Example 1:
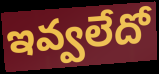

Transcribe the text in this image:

ఇవ్వలేదో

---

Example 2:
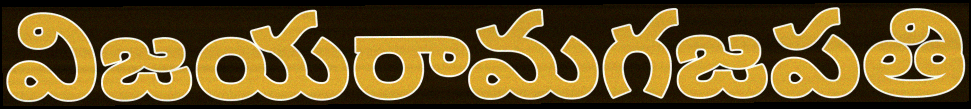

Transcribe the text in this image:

విజయరామగజపతి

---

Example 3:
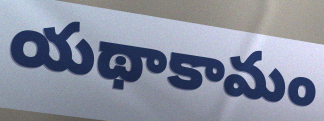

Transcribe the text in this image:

యథాకామం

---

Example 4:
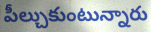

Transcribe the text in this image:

పీల్చుకుంటున్నారు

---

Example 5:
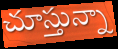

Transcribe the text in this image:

చూస్తున్నా